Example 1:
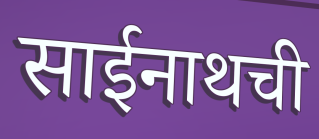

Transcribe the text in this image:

साईनाथची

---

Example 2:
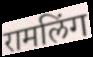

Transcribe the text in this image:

रामलिंग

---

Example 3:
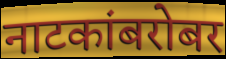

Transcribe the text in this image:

नाटकांबरोबर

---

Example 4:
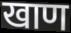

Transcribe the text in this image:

खाण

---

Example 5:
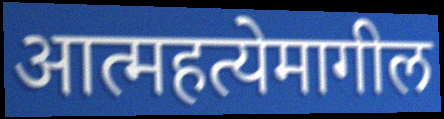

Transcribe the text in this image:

आत्महत्येमागील